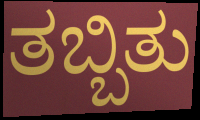
ತಬ್ಬಿತು